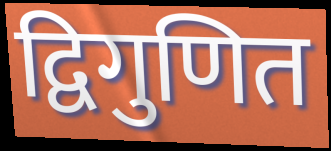
द्विगुणित